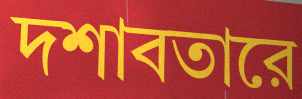
দশাবতারে